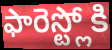
ఫారెస్ట్లోకి